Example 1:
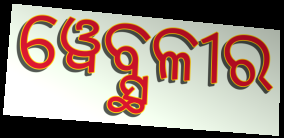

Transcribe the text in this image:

ୱେବ୍ସ୍ଥଳୀର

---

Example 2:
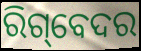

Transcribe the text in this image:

ରିଗ୍‌ବେଦର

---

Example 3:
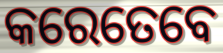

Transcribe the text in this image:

କରେତେବେ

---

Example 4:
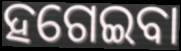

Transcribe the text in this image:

ହଗେଇବା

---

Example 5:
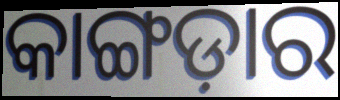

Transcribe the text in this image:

କାଙ୍ଗଡ଼ାର